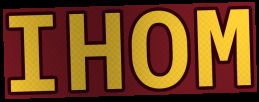
IHOM